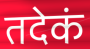
तदेकं